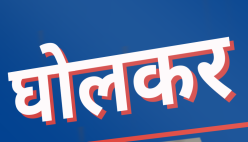
घोलकर